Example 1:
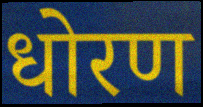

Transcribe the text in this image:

धोरण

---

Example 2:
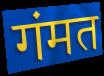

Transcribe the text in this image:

गंमत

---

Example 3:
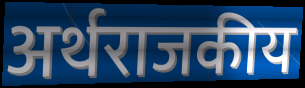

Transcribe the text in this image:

अर्थराजकीय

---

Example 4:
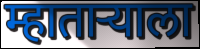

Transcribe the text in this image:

म्हाताऱ्याला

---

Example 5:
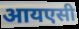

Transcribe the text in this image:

आयएसी